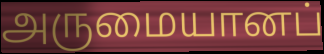
அருமையானப்